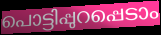
പൊട്ടിപ്പുറപ്പെടാം